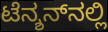
ಟೆನ್ಶನ್‌ನಲ್ಲಿ